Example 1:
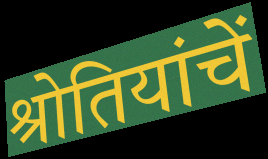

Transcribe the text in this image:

श्रोतियांचें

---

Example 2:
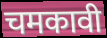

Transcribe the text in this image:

चमकावी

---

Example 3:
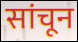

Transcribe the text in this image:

सांचून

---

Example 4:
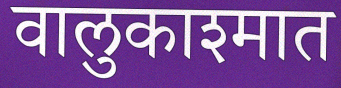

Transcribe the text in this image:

वालुकाश्मात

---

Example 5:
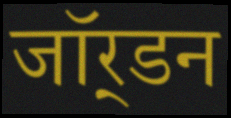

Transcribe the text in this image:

जॉर्डन